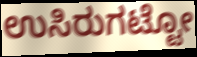
ಉಸಿರುಗಟ್ಟೋ